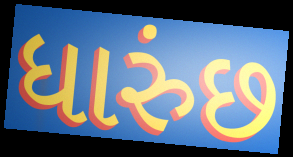
ધારુંછ